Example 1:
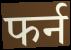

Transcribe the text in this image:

फर्न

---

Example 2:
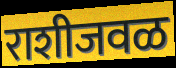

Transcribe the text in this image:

राशीजवळ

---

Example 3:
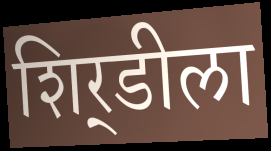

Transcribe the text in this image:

शिर्डीला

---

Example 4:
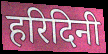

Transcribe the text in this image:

हरिदिनी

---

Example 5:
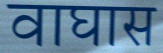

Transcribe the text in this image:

वाघास